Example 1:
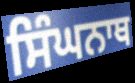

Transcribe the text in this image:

ਸਿੰਘਨਾਥ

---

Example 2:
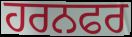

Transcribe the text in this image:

ਹਰਨਫਰ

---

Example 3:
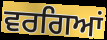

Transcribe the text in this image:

ਵਰਗਿਆਂ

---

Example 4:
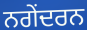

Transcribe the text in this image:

ਨਗੇਂਦਰਨ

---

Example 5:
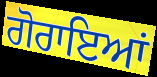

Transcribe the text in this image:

ਗੋਰਾਇਆਂ